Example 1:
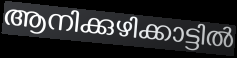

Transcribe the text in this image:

ആനിക്കുഴിക്കാട്ടിൽ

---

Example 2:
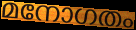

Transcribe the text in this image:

മനോഗതം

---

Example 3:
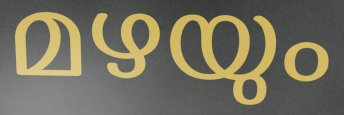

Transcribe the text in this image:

മഴയും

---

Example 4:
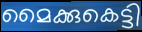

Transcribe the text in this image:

മൈക്കുകെട്ടി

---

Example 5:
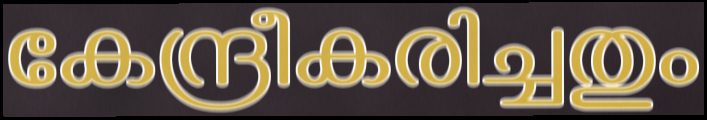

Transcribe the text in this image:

കേന്ദ്രീകരിച്ചതും